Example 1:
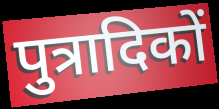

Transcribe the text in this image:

पुत्रादिकों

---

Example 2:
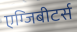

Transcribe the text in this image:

एग्जिबीटर्स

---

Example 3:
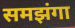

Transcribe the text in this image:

समझंगा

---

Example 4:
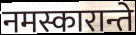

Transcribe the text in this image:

नमस्कारान्ते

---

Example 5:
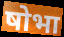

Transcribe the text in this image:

षोभा